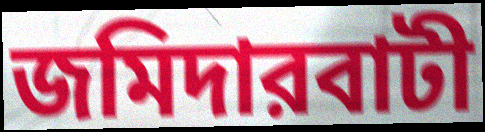
জমিদারবাটী